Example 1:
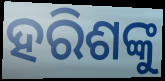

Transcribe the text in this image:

ହରିଶଙ୍କୁ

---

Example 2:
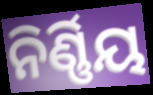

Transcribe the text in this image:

ନିର୍ଣ୍ଣିୟ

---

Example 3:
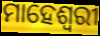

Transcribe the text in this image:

ମାହେଶ୍ଵରୀ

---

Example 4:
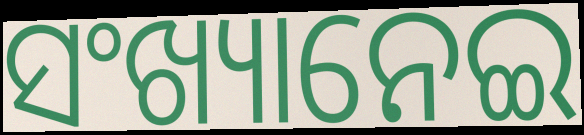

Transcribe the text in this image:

ସଂଖ୍ୟାନେଇ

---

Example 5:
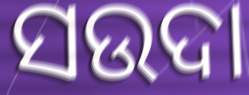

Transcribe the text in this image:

ସଉଦା